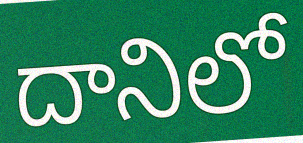
దానిలో